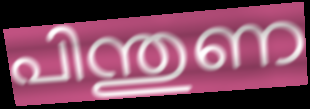
പിന്തുണ